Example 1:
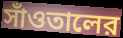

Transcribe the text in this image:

সাঁওতালের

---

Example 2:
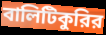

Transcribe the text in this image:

বালিটিকুরির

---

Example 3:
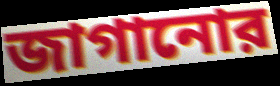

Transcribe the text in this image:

জাগানোর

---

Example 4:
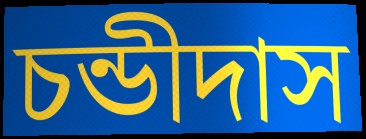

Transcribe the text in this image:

চন্ডীদাস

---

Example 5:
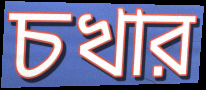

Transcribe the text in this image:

চখার